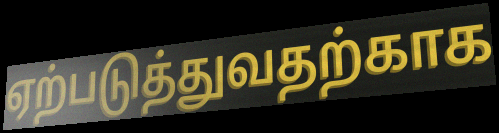
ஏற்படுத்துவதற்காக